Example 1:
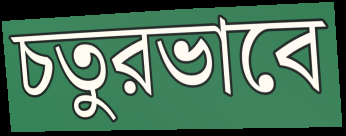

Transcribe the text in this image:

চতুরভাবে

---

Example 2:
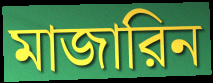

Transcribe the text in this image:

মাজারিন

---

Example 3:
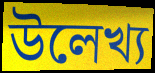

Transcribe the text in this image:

উলেখ্য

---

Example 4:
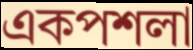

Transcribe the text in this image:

একপশলা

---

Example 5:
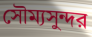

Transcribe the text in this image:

সৌম্যসুন্দর